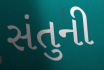
સંતુની